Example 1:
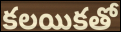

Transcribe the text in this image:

కలయికతో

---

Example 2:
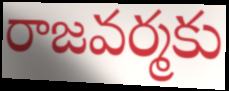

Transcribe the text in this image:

రాజవర్మకు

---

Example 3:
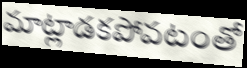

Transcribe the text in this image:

మాట్లాడకపోవటంతో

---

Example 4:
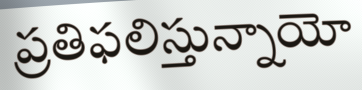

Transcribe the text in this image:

ప్రతిఫలిస్తున్నాయో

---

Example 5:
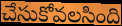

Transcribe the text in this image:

చేసుకోవలసింది